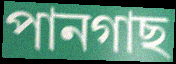
পানগাছ